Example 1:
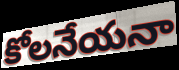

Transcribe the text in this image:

కోలనేయనా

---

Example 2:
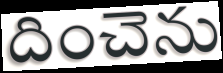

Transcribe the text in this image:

దించెను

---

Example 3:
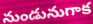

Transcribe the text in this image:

నుండునుగాక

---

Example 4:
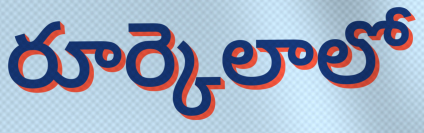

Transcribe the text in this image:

రూర్కెలాలో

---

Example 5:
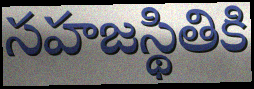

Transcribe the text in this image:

సహజస్థితికి